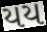
યય